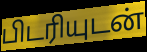
பிடரியுடன்